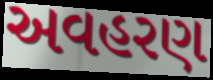
અવહરણ